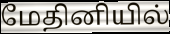
மேதினியில்